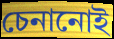
চেনানোই